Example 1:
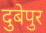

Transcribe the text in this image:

दुबेपुर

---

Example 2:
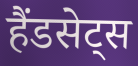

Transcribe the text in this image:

हैंडसेट्स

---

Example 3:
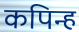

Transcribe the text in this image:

कपिन्ह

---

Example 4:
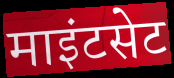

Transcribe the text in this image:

माइंटसेट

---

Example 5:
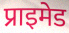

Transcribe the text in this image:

प्राइमेड